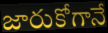
జారుకోగానే